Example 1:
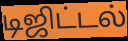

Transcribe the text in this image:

டிஜிட்டல்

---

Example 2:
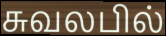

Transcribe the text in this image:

சுவலபில்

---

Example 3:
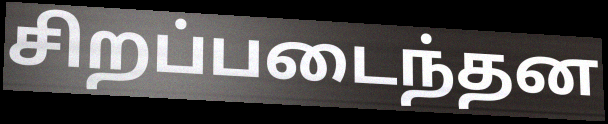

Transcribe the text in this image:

சிறப்படைந்தன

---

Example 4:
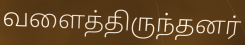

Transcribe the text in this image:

வளைத்திருந்தனர்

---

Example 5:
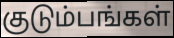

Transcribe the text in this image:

குடும்பங்கள்